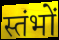
स्तंभों